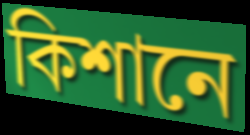
কিশানে